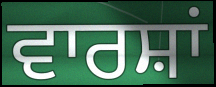
ਵਾਰਸ਼ਾਂ